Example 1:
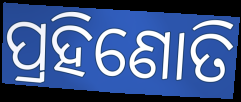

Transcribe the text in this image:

ପ୍ରହିଣୋତି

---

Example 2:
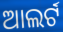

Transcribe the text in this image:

ଆଲର୍ଟ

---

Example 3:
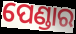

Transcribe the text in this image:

ପେଣ୍ଡାର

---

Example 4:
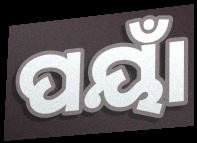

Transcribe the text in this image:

ପୟାଁ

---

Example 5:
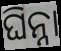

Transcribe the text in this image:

ଘିନ୍ନା